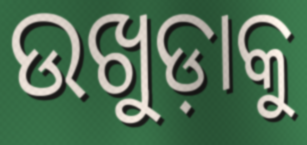
ଉଖୁଡ଼ାକୁ